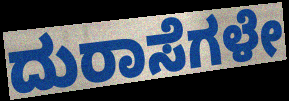
ದುರಾಸೆಗಳೇ